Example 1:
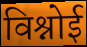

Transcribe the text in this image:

विश्नोई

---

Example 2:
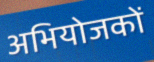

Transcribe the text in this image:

अभियोजकों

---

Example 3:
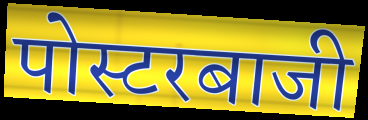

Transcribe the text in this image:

पोस्टरबाजी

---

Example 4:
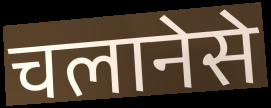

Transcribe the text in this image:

चलानेसे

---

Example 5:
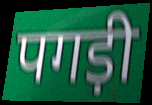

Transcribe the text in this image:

पगड़ी